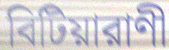
বিটিয়ারাণী